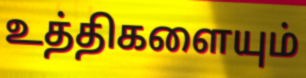
உத்திகளையும்